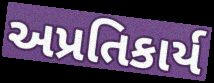
અપ્રતિકાર્ય